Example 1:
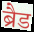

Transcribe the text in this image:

ब्रैड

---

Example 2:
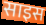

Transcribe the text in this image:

साइस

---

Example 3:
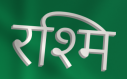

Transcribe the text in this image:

रश्मि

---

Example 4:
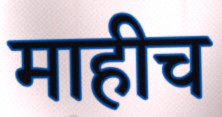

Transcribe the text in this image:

माहीच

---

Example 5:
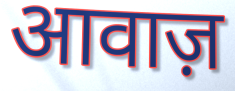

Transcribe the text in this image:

आवाज़